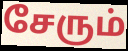
சேரும்